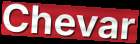
Chevar